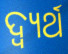
ଦ୍ୱ୍ୟର୍ଥ